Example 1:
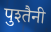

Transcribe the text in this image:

पुश्तैनी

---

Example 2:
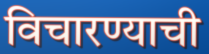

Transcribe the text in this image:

विचारण्याची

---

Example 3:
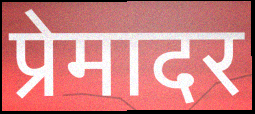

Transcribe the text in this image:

प्रेमादर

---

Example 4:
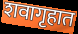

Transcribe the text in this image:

शवागृहात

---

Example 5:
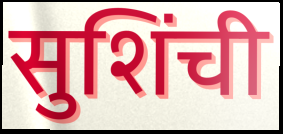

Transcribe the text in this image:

सुशिंची